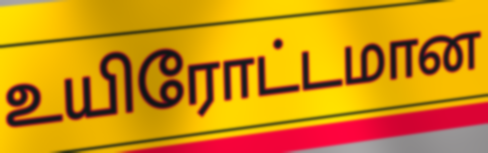
உயிரோட்டமான